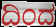
ದಿಂದ